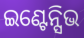
ଇଣ୍ଟେନ୍ସିଭ